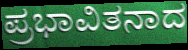
ಪ್ರಭಾವಿತನಾದ